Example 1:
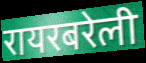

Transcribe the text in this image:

रायरबरेली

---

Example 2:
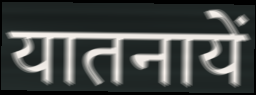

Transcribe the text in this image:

यातनायें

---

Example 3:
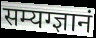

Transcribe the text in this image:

सम्यग्ज्ञानं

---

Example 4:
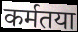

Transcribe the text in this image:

कर्मतया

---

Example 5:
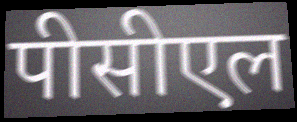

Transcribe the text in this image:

पीसीएल